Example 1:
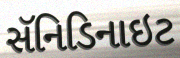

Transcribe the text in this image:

સૅનિડિનાઇટ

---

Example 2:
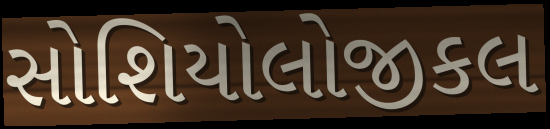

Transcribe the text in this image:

સોશિયોલોજીકલ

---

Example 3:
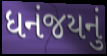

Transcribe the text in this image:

ધનંજયનું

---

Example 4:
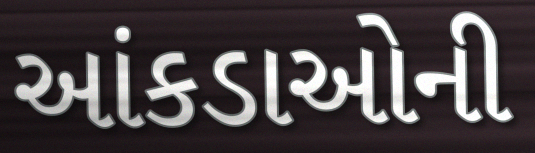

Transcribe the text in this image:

આંકડાઓની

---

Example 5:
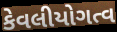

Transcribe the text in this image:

કેવલીયોગત્વ